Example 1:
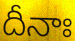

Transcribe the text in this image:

దీనాః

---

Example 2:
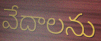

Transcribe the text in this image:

వేదాలను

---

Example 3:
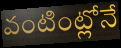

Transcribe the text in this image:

వంటింట్లోనే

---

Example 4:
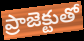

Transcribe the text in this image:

ప్రాజెక్టుతో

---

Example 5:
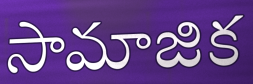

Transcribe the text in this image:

సామాజిక